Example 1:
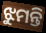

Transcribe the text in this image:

ଝୁମନ୍ତି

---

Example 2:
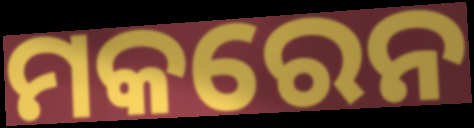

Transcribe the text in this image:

ମକରେନ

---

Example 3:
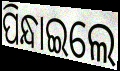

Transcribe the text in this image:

ପିନ୍ଧାଇଲେ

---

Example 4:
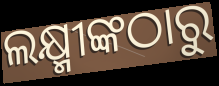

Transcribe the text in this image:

ଲକ୍ଷ୍ମୀଙ୍କଠାରୁ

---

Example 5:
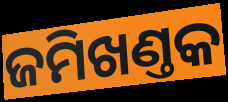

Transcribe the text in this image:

ଜମିଖଣ୍ତକ